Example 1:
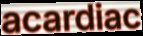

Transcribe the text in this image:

acardiac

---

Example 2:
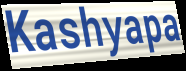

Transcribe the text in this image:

Kashyapa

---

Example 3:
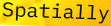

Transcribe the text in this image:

Spatially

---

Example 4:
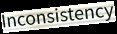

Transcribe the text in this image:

Inconsistency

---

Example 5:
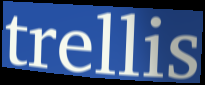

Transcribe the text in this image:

trellis